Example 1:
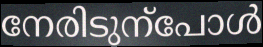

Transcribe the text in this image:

നേരിടുന്പോൾ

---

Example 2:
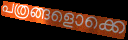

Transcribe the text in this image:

പത്രങ്ങളൊക്കെ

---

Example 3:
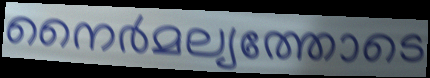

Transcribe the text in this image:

നൈർമല്യത്തോടെ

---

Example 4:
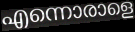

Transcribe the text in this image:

എന്നൊരാളെ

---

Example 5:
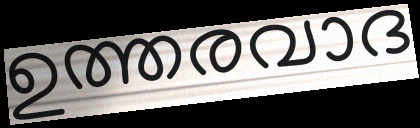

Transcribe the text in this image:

ഉത്തരവാദ